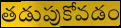
తడుపుకోవడం